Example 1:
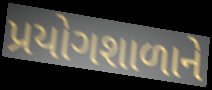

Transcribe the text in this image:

પ્રયોગશાળાને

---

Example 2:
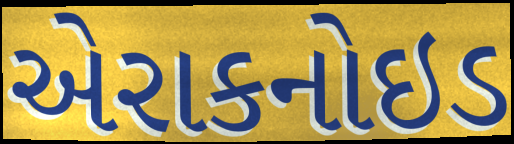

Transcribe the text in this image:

એરાકનોઇડ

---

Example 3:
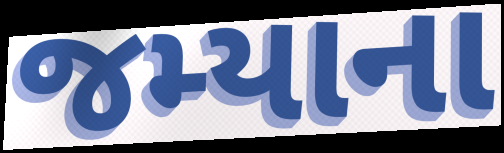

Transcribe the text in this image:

જમ્યાના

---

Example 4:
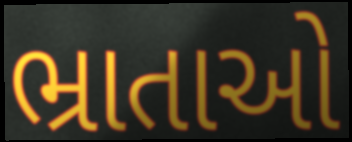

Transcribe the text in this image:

ભ્રાતાઓ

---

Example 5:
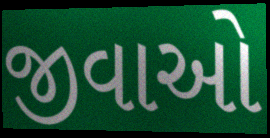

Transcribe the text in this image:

જીવાઓ